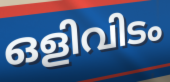
ഒളിവിടം